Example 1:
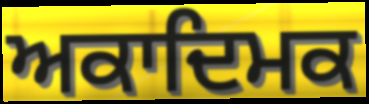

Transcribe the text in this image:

ਅਕਾਦਿਮਕ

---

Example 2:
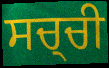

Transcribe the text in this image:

ਸਚ੍ਚੀ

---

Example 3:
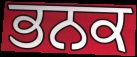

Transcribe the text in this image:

ਭਨਕ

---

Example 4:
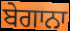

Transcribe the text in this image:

ਬੇਗਾਨਾ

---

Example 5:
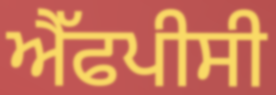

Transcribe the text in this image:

ਐੱਫਪੀਸੀ